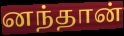
னந்தான்